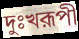
দুঃখরূপী